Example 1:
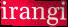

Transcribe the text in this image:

irangi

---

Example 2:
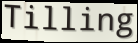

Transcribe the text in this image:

Tilling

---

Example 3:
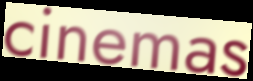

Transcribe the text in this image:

cinemas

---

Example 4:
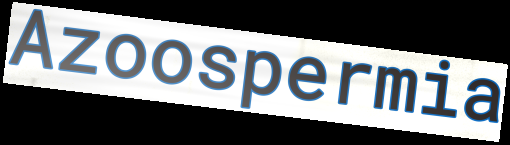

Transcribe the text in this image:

Azoospermia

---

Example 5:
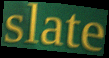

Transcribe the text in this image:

slate